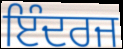
ਇੰਦਰਜ